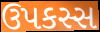
ઉપકસ્સ